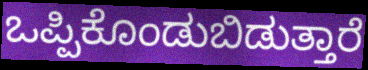
ಒಪ್ಪಿಕೊಂಡುಬಿಡುತ್ತಾರೆ